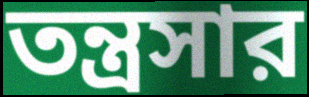
তন্ত্রসার